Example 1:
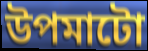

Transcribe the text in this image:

উপমাটো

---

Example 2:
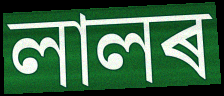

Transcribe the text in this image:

লালৰ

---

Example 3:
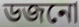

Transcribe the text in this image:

ডজনো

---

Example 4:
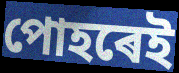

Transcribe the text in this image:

পোহৰেই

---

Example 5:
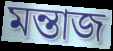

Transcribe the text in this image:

মন্তাজ